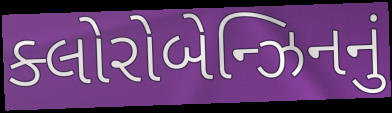
ક્લોરોબેન્ઝિનનું